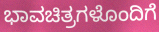
ಭಾವಚಿತ್ರಗಳೊಂದಿಗೆ